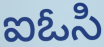
ఐఓసి